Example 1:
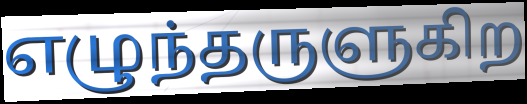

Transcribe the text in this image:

எழுந்தருளுகிற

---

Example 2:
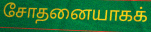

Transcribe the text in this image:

சோதனையாகக்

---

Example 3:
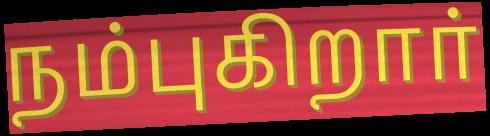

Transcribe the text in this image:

நம்புகிறார்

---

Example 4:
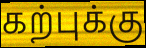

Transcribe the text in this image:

கற்புக்கு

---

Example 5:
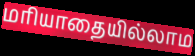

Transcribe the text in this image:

மரியாதையில்லாம